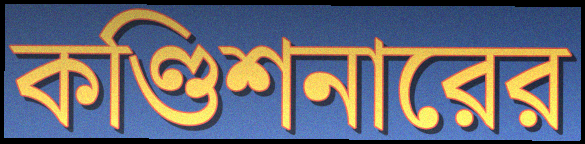
কণ্ডিশনারের